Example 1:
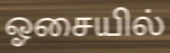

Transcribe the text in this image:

ஓசையில்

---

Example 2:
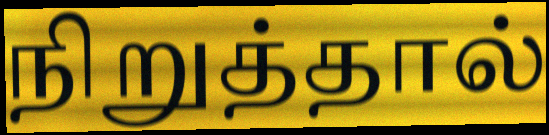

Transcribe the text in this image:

நிறுத்தால்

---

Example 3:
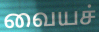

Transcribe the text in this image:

வையச்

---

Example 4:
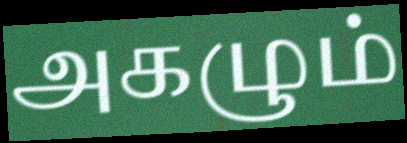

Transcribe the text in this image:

அகழும்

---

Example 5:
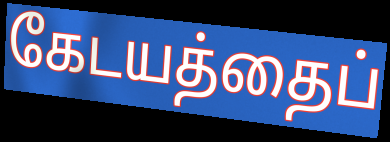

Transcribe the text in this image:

கேடயத்தைப்